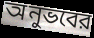
অনুভবের